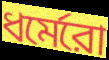
ধর্মেরো